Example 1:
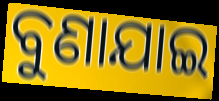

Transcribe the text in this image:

ବୁଣାଯାଇ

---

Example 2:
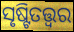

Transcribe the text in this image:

ସୃଷ୍ଟିତତ୍ତ୍ୱର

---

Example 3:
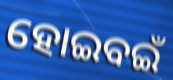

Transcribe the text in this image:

ହୋଇବଇଁ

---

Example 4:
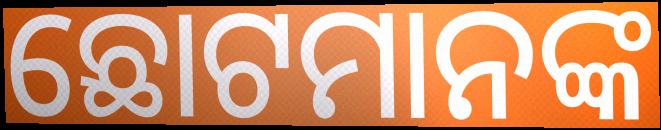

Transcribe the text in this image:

ଛୋଟମାନଙ୍କ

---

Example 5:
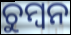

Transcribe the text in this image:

ଚୁମ୍ୱନ